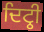
ਦਿਟ੍ਠੀ